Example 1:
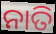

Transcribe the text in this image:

ନାତି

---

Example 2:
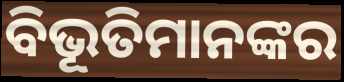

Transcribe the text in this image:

ବିଭୂତିମାନଙ୍କର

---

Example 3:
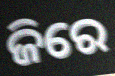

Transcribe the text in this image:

ଜିରେ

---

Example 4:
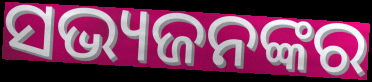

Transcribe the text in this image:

ସଭ୍ୟଜନଙ୍କର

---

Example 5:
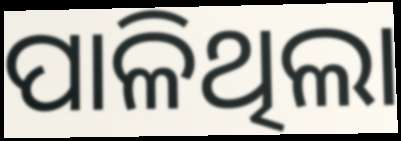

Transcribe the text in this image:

ପାଳିଥିଲା